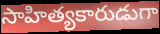
సాహిత్యకారుడుగా